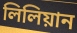
লিলিয়ান